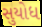
સુયોધ